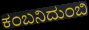
ಕಂಬನಿದುಂಬಿ